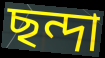
ছন্দা